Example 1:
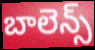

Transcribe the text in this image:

బాలెన్స్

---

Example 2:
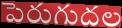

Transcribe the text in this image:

పెరుగుదల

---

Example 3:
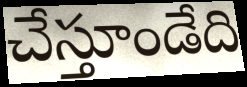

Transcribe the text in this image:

చేస్తూండేది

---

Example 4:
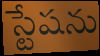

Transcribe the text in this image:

స్టేషను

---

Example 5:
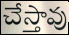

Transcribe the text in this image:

చేస్తావు